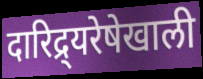
दारिद्र्यरेषेखाली